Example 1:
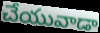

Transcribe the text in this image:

చేయువాడా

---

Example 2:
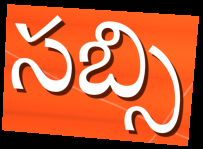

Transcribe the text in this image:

సబ్సి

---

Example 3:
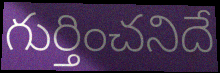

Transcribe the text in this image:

గుర్తించనిదే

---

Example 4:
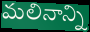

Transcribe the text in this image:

మలినాన్ని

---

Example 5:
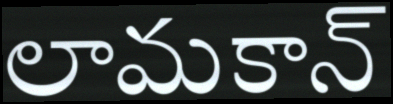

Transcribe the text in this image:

లామకాన్